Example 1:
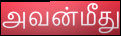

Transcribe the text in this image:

அவன்மீது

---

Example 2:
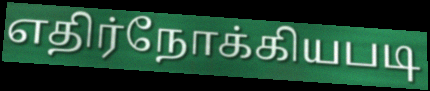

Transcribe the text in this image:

எதிர்நோக்கியபடி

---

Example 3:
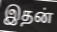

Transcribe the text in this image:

இதன்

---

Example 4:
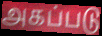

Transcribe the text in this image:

அகப்படு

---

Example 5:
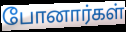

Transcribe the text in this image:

போனார்கள்